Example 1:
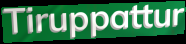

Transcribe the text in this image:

Tiruppattur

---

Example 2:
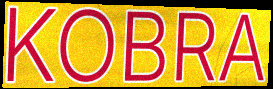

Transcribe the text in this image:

KOBRA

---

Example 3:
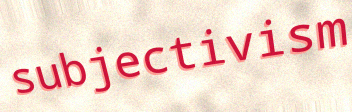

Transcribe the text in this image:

subjectivism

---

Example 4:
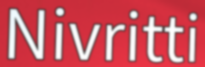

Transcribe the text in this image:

Nivritti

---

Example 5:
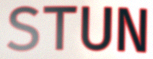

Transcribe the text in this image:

STUN